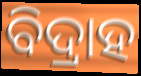
ବିଦ୍ରାହ